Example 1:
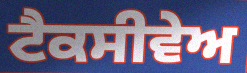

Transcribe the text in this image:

ਟੈਕਸੀਵੇਅ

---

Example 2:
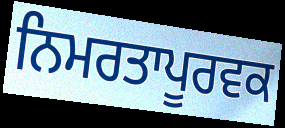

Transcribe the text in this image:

ਨਿਮਰਤਾਪੂਰਵਕ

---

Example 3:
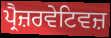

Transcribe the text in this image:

ਪ੍ਰੈਜ਼ਰਵੇਟਿਵਜ਼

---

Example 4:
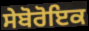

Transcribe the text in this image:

ਸੇਬੋਰੋਇਕ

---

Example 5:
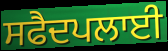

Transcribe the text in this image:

ਸਫੈਦਪਲਾਈ